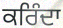
ਕਰਿੰਦਾ